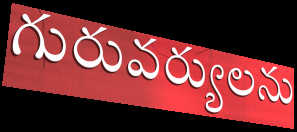
గురువర్యులను